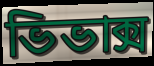
ভিভাক্স